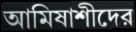
আমিষাশীদের